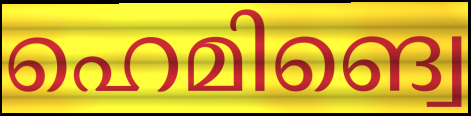
ഹെമിങ്വെ